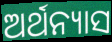
ଅର୍ଥନ୍ୟାସ